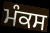
ਮੰਕਸ